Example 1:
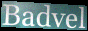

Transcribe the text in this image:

Badvel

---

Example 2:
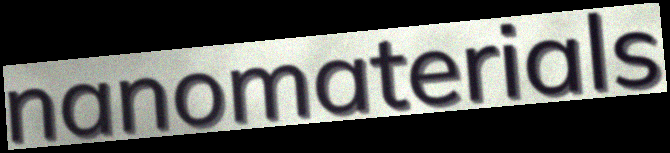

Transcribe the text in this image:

nanomaterials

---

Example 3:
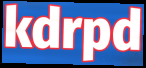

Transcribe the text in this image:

kdrpd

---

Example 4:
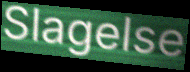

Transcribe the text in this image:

Slagelse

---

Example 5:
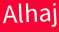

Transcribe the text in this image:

Alhaj